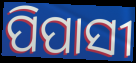
ପିପାସୀ